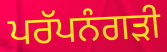
ਪਰੱਪਨੰਗੜੀ